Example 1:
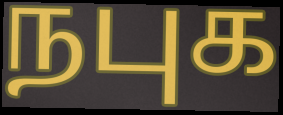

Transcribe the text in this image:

நபுக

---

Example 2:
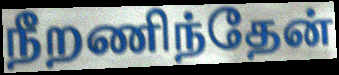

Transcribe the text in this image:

நீறணிந்தேன்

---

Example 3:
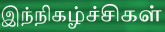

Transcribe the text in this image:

இந்நிகழ்ச்சிகள்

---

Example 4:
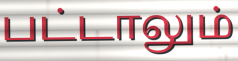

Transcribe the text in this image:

பட்டாலும்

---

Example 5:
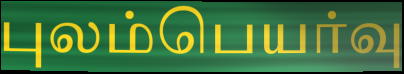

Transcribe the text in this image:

புலம்பெயர்வு